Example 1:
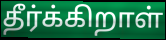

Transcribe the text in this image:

தீர்க்கிறாள்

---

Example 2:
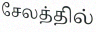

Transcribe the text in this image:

சேலத்தில்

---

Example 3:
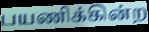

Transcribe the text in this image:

பயணிக்கின்ற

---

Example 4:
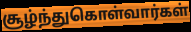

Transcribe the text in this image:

சூழ்ந்துகொள்வார்கள்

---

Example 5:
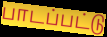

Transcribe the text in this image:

பாடப்பட்டு